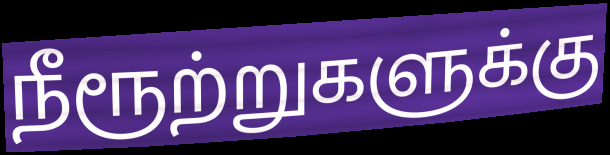
நீரூற்றுகளுக்கு